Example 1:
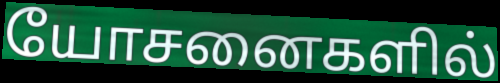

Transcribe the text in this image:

யோசனைகளில்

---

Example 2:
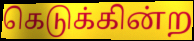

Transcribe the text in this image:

கெடுக்கின்ற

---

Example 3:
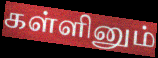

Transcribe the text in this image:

கள்ளினும்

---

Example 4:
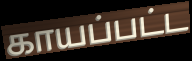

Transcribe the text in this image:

காயப்பட்ட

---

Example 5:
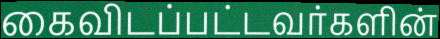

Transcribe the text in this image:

கைவிடப்பட்டவர்களின்